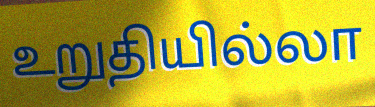
உறுதியில்லா